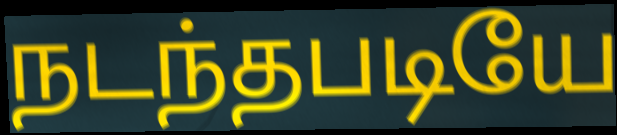
நடந்தபடியே